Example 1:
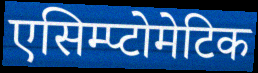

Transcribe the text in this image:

एसिम्प्टोमेटिक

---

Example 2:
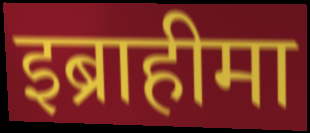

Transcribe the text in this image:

इब्राहीमा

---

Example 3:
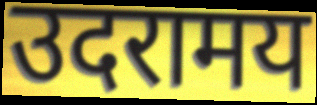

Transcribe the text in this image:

उदरामय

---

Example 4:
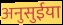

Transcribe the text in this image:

अनुसुईया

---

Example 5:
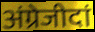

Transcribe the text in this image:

अंग्रेजीदां